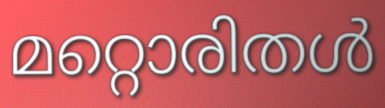
മറ്റൊരിതൾ